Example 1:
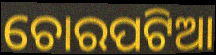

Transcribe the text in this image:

ଚୋରପଟିଆ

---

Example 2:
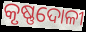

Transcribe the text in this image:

କୃଷ୍ଣଦୋଳୀ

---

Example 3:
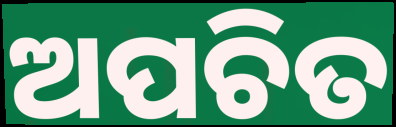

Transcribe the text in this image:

ଅପଚିତ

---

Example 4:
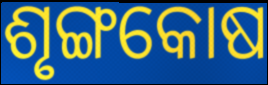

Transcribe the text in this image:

ଶୃଙ୍ଗକୋଷ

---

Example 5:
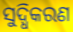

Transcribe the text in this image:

ସୁଦ୍ଧିକରଣ